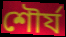
শৌর্য